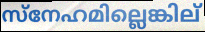
സ്നേഹമില്ലെങ്കില്